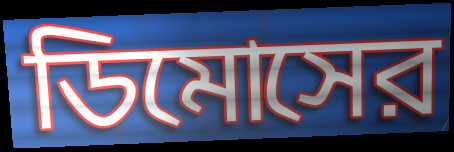
ডিমোসের